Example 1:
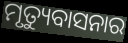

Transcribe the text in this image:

ମୃତ୍ୟୁବାସନାର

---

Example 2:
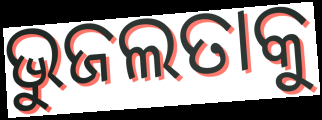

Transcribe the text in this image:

ଭୁଜଲତାକୁ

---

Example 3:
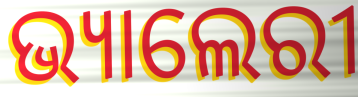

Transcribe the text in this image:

ଭ୍ୟାଲେରୀ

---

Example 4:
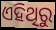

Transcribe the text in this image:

ଏହିଥିରୁ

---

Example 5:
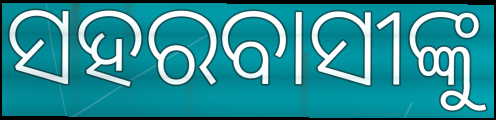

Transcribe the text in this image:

ସହରବାସୀଙ୍କୁ